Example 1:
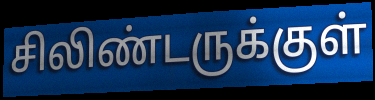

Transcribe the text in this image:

சிலிண்டருக்குள்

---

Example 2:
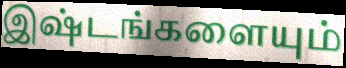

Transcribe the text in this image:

இஷ்டங்களையும்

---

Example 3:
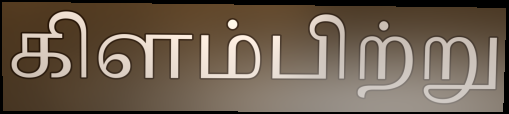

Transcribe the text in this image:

கிளம்பிற்று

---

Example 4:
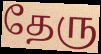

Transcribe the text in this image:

தேரு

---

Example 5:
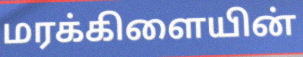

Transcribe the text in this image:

மரக்கிளையின்